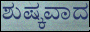
ಶುಷ್ಕವಾದ